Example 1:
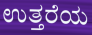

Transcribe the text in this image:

ಉತ್ತರೆಯ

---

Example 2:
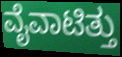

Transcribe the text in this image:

ವೈವಾಟಿತ್ತು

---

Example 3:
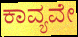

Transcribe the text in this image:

ಕಾವ್ಯವೇ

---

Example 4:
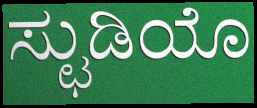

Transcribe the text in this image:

ಸ್ಟುಡಿಯೊ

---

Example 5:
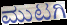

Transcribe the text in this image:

ಮುಟಗಿ